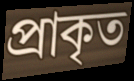
প্ৰাকৃত